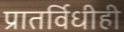
प्रातर्विधीही